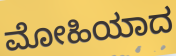
ಮೋಹಿಯಾದ